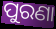
ପୁରଣା